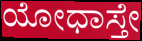
ಯೋಧಾಸ್ತೇ